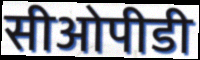
सीओपीडी